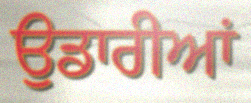
ਉੁਡਾਰੀਆਂ